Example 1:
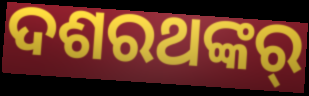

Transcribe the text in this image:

ଦଶରଥଙ୍କର୍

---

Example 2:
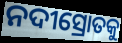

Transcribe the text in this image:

ନଦୀସ୍ରୋତକୁ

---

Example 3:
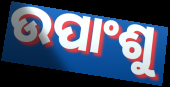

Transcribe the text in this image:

ଉପାଂଶୁ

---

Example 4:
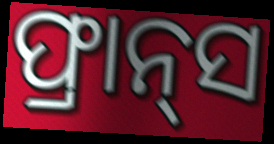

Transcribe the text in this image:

ଫ୍ରାନ୍‍ସ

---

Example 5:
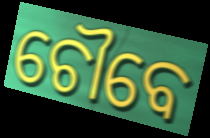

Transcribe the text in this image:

ଚୌବେ